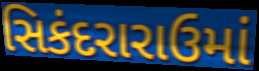
સિકંદરારાઉમાં